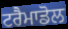
ਟਰੈਮਾਡੋਲ